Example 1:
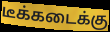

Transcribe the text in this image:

டீக்கடைக்கு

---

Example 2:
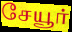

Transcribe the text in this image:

சேயூர்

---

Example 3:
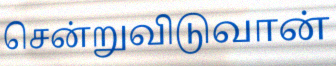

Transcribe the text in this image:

சென்றுவிடுவான்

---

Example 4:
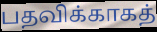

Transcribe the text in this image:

பதவிக்காகத்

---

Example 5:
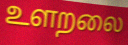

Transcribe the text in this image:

உளறலை